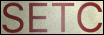
SETC